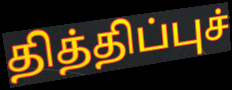
தித்திப்புச்